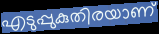
എടുപ്പുകുതിരയാണ്